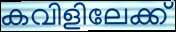
കവിളിലേക്ക്